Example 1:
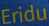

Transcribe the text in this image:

Eridu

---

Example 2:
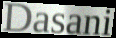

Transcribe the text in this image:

Dasani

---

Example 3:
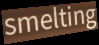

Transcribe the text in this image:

smelting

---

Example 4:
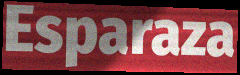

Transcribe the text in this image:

Esparaza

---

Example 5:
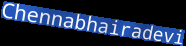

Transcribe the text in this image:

Chennabhairadevi